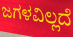
ಜಗಳವಿಲ್ಲದೆ